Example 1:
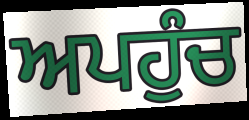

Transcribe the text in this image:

ਅਪਹੁੰਚ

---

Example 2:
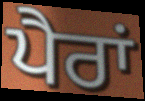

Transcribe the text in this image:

ਪੈਰਾਂ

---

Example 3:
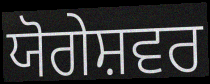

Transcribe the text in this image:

ਯੋਗੇਸ਼ਵਰ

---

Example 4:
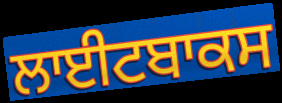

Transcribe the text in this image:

ਲਾਈਟਬਾਕਸ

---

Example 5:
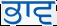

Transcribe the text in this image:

ਭਾਵ